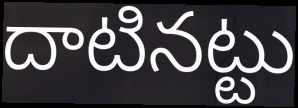
దాటినట్టు